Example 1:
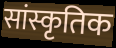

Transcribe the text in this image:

सांस्‍कृतिक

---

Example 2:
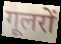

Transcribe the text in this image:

गूलरों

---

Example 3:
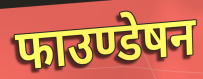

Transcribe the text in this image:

फाउण्डेषन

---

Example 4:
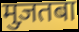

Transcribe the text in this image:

मुज़तबा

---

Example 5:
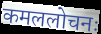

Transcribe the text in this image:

कमललोचनः